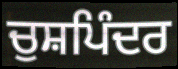
ਚੁਸ਼ਪਿੰਦਰ